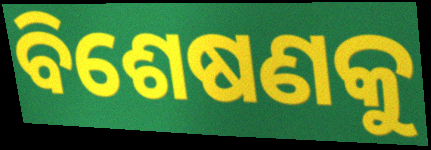
ବିଶେଷଣକୁ